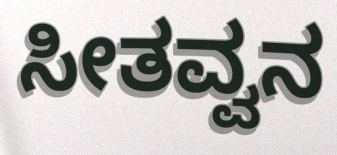
ಸೀತವ್ವನ